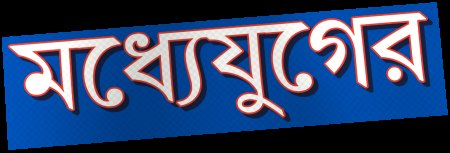
মধ্যেযুগের